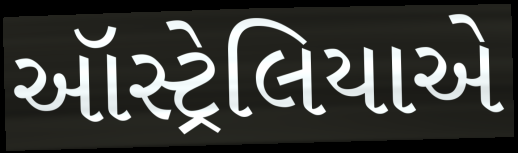
ઑસ્ટ્રેલિયાએ